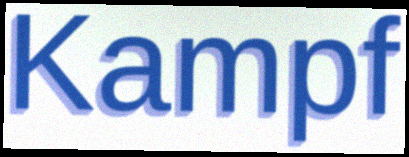
Kampf